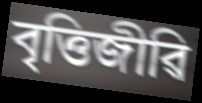
বৃত্তিজীৱি